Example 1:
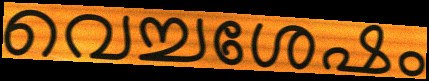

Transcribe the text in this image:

വെച്ചശേഷം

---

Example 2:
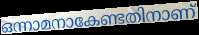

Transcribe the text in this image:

ഒന്നാമനാകേണ്ടതിനാണ്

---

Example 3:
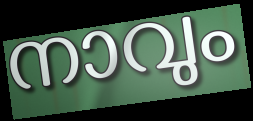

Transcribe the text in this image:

നാവും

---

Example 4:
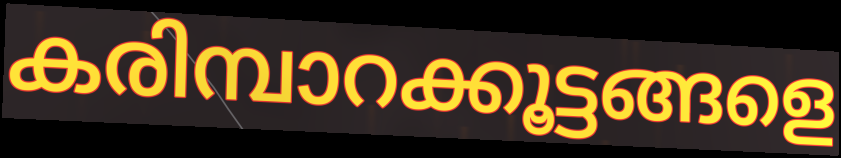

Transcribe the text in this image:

കരിമ്പാറക്കൂട്ടങ്ങളെ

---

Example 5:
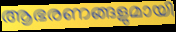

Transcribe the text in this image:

ആഭരണങ്ങളുമായി